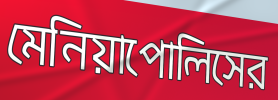
মেনিয়াপোলিসের